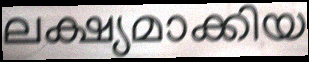
ലക്ഷ്യമാക്കിയ